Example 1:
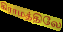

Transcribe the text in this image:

கிராமத்திலே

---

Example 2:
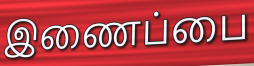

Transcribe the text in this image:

இணைப்பை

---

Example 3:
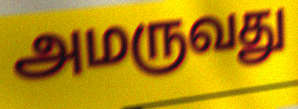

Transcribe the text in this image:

அமருவது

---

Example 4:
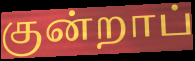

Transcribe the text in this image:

குன்றாப்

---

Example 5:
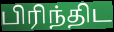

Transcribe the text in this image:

பிரிந்திட